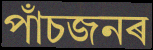
পাঁচজনৰ